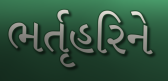
ભર્તૃહરિને